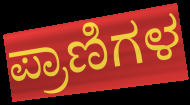
ಪ್ರಾಣಿಗಳ